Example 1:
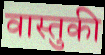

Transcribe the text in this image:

वास्तुकी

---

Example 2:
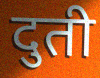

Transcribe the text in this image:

दुती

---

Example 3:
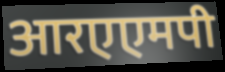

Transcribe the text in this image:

आरएएमपी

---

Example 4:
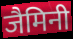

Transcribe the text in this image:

जैमिनी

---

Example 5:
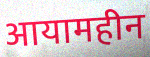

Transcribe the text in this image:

आयामहीन